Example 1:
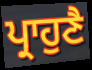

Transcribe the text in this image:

ਪ੍ਰਾਹੁਣੈ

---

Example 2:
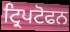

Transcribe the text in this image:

ਟ੍ਰਿਪਟੋਫਨ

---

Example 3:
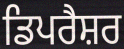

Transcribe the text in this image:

ਡਿਪਰੈਸ਼ਰ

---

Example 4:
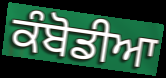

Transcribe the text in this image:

ਕੰਬੋਡੀਆ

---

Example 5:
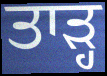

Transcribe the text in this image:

ਤਾੜ੍ਹ